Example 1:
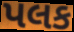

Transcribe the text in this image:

પલક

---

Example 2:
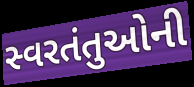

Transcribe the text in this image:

સ્વરતંતુઓની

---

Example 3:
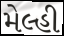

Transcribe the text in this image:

મેલ્હી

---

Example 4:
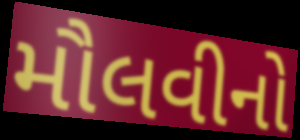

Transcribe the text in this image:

મૌલવીનો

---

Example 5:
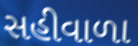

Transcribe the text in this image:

સહીવાળા